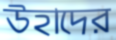
উহাদের